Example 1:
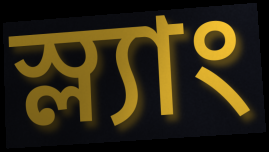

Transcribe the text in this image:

স্ল্যাং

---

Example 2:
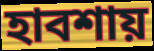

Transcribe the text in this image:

হাবশায়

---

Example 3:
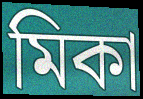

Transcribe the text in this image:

মিকা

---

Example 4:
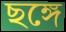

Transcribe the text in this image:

ছঙ্গে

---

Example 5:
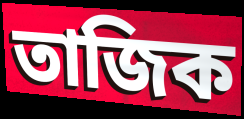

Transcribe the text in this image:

তাজিক